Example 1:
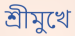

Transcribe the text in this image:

শ্রীমুখে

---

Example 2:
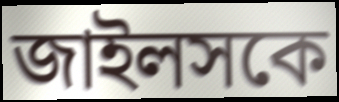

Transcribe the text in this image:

জাইলসকে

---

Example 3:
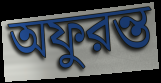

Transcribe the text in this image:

অফুরন্ত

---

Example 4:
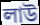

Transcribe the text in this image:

লাউ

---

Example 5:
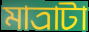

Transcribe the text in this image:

মাত্রাটা